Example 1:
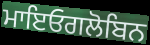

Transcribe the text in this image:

ਮਾਇਓਗਲੋਬਿਨ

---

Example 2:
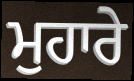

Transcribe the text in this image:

ਮੁਹਾਰੇ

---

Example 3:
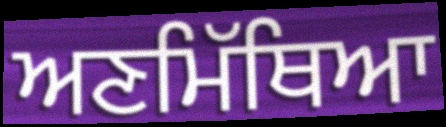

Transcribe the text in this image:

ਅਣਮਿੱਥਿਆ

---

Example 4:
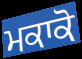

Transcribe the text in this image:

ਮਕਾਕੋ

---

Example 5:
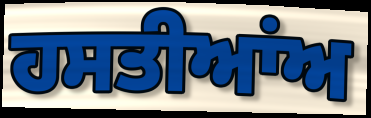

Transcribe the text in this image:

ਹਸਤੀਆਂਅ